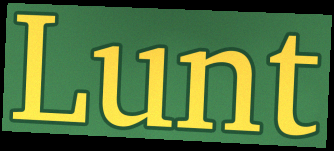
Lunt